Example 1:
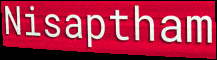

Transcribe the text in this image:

Nisaptham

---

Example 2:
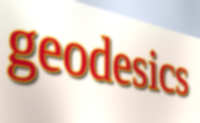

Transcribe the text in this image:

geodesics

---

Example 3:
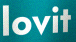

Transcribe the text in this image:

lovit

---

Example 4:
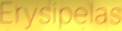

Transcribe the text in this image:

Erysipelas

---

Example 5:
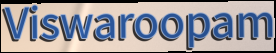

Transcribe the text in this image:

Viswaroopam